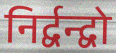
निर्द्वन्द्वो